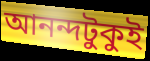
আনন্দটুকুই